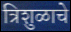
त्रिशुळाचे